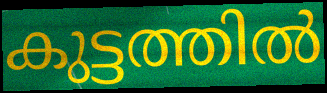
കുട്ടത്തിൽ